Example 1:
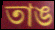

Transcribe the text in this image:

তাঙ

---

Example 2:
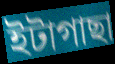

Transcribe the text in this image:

ইটাগাছা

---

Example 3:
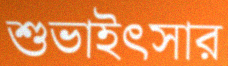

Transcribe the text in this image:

শুভাইৎসার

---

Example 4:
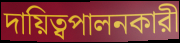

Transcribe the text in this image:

দায়িত্বপালনকারী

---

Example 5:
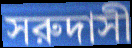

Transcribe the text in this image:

সরুদাসী